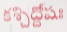
కశ్చిద్దోషః